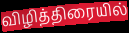
விழித்திரையில்